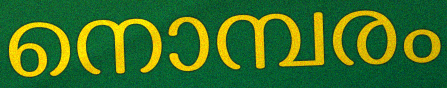
നൊമ്പരം